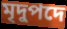
মৃদুপদে